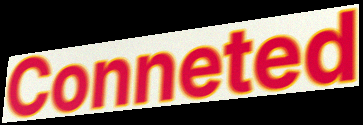
Conneted